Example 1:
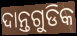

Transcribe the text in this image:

ଦାନ୍ତଗୁଡିକ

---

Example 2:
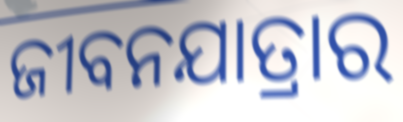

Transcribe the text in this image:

ଜୀବନଯାତ୍ରାର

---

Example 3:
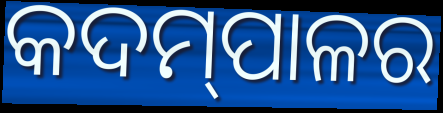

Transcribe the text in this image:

କଦମ୍‍ପାଳର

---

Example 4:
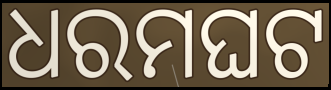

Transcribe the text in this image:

ଧରମଘଟ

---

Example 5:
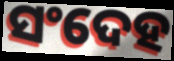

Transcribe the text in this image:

ସଂଦେହ